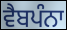
ਵੈਬਪੰਨਾ